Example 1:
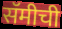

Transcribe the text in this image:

सॅमीची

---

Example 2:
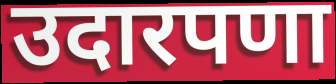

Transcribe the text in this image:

उदारपणा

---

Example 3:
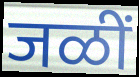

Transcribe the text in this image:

जळीं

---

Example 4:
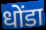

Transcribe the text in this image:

धोंडा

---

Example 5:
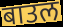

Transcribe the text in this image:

बाउल